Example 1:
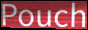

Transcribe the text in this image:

Pouch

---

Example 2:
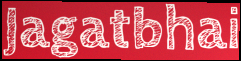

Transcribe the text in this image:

Jagatbhai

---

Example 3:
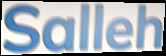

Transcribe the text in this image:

Salleh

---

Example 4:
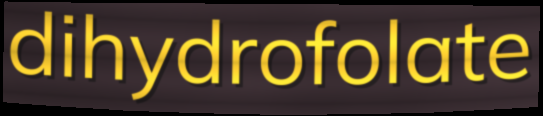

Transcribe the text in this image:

dihydrofolate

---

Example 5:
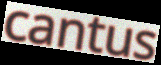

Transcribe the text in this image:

cantus